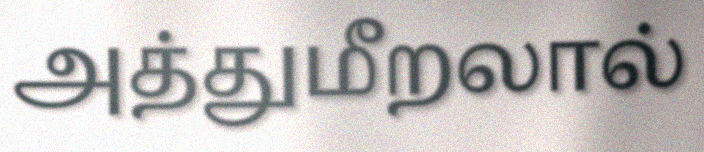
அத்துமீறலால்